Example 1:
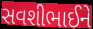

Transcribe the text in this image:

સવશીભાઈને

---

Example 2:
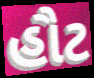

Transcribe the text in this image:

હૌટ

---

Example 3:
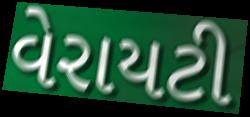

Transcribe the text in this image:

વેરાયટી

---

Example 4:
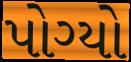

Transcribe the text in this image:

પોગ્યો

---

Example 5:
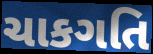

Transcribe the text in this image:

ચાકગતિ